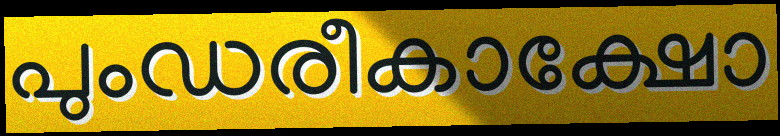
പുംഡരീകാക്ഷോ